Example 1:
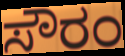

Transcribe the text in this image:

ಸೌರಂ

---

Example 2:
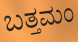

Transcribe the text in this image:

ಬತ್ತಮಂ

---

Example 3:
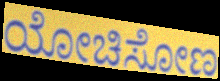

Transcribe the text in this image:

ಯೋಚಿಸೋಣ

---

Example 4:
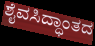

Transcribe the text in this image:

ಶೈವಸಿದ್ಧಾಂತದ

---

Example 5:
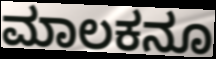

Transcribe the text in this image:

ಮಾಲಕನೂ